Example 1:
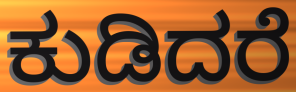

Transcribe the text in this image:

ಕುಡಿದರೆ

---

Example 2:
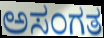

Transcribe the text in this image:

ಅಸಂಗತ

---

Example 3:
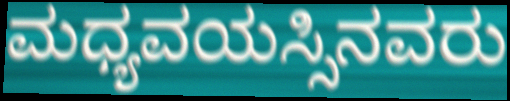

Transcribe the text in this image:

ಮಧ್ಯವಯಸ್ಸಿನವರು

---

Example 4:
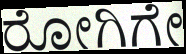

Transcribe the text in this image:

ರೋಗಿಗೇ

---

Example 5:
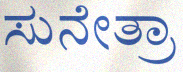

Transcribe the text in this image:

ಸುನೇತ್ರಾ